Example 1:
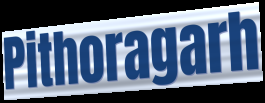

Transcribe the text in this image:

Pithoragarh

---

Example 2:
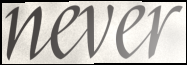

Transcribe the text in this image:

never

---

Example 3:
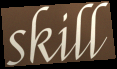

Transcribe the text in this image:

skill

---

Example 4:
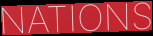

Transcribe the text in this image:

NATIONS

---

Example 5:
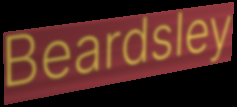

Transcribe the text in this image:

Beardsley